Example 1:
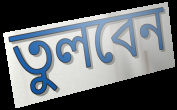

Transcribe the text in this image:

তুলবেন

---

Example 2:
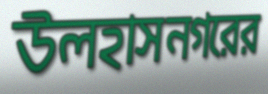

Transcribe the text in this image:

উলহাসনগরের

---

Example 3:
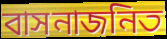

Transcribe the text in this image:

বাসনাজনিত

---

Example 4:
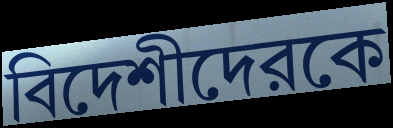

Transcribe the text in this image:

বিদেশীদেরকে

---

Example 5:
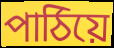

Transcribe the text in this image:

পাঠিয়ে